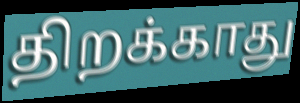
திறக்காது